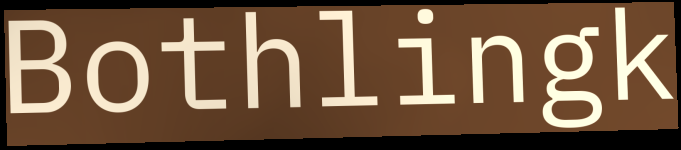
Bothlingk